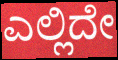
ಎಲ್ಲಿದೇ